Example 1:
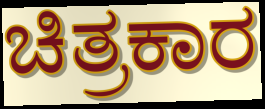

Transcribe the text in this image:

ಚಿತ್ರಕಾರ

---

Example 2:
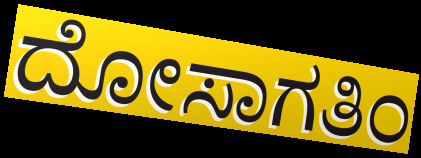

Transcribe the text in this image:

ದೋಸಾಗತಿಂ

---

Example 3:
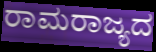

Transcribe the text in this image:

ರಾಮರಾಜ್ಯದ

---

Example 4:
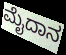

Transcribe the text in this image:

ಮೈದಾನ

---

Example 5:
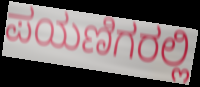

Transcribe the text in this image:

ಪಯಣಿಗರಲ್ಲಿ